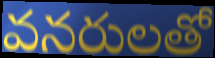
వనరులతో